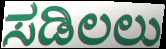
ಸಡಿಲಲು